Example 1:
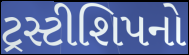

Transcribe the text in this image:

ટ્રસ્ટીશિપનો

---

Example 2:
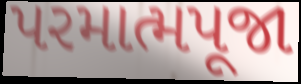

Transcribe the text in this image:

પરમાત્મપૂજા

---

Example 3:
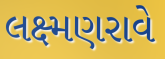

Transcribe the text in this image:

લક્ષ્મણરાવે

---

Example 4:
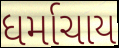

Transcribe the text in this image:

ધર્માચાય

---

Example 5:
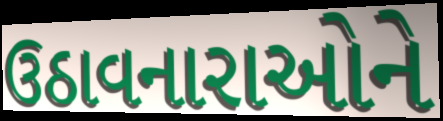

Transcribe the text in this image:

ઉઠાવનારાઓને